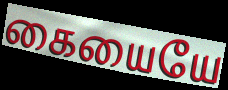
கையையே